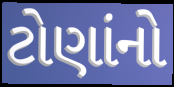
ટોણાંનો